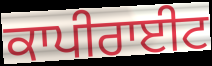
ਕਾਪੀਰਾਈਟ